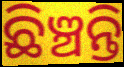
ଛିଞ୍ଚନ୍ତି